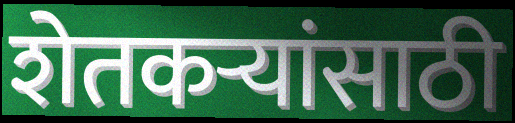
शेतकर्‍यांसाठी